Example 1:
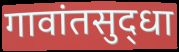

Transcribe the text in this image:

गावांतसुद्धा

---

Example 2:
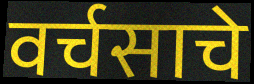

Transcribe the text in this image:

वर्चसाचे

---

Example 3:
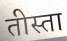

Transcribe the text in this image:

तीस्ता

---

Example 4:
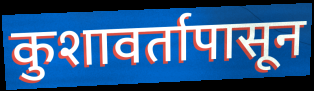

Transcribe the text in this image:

कुशावर्तापासून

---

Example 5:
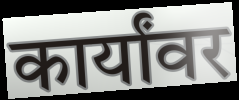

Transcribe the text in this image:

कार्यांवर